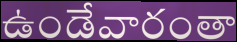
ఉండేవారంతా